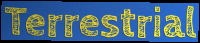
Terrestrial